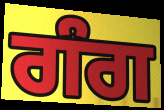
ਗੰਗ